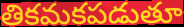
తికమకపడుతూ